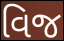
વિજ